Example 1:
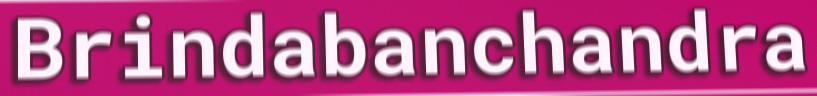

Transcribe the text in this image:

Brindabanchandra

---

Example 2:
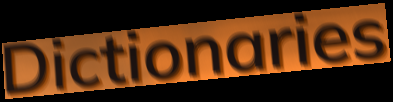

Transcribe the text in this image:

Dictionaries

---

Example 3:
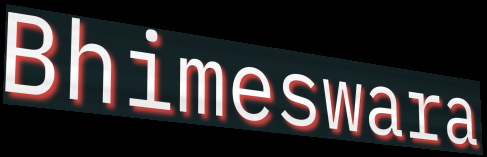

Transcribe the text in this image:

Bhimeswara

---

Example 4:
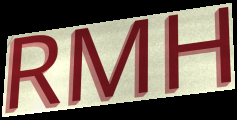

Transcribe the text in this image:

RMH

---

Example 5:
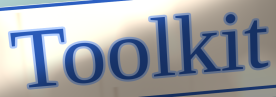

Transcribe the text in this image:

Toolkit